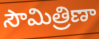
సౌమిత్రిణా